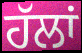
ਹੱਲਾਂ